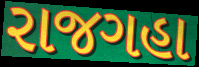
રાજગહા